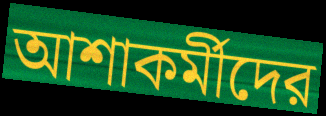
আশাকর্মীদের